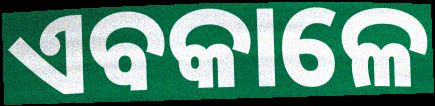
ଏବକାଳେ